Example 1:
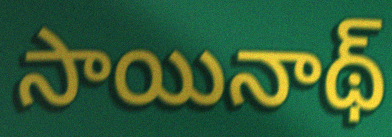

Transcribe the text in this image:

సాయినాథ్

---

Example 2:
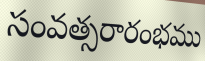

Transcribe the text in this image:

సంవత్సరారంభము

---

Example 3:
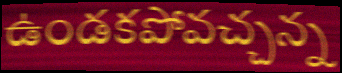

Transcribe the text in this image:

ఉండకపోవచ్చన్న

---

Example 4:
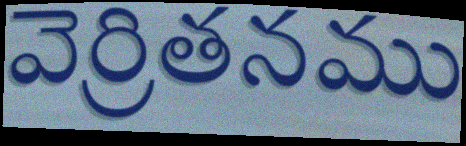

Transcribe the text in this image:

వెర్రితనము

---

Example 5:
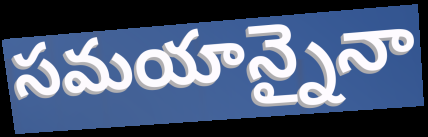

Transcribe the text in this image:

సమయాన్నైనా